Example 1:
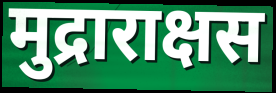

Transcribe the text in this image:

मुद्राराक्षस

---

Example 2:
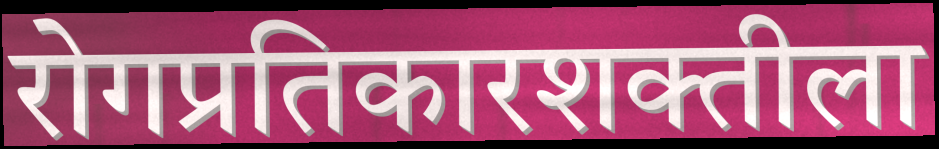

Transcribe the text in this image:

रोगप्रतिकारशक्तीला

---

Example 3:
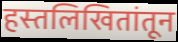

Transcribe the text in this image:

हस्तलिखितांतून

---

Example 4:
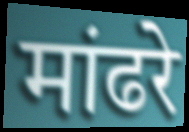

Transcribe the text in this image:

मांढरे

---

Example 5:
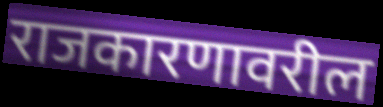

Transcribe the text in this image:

राजकारणावरील